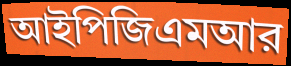
আইপিজিএমআর